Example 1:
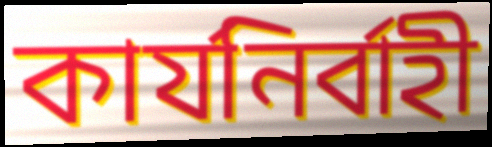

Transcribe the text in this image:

কার্যনির্বাহী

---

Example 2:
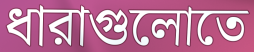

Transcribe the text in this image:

ধারাগুলোতে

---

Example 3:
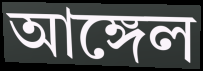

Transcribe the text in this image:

আঙ্গেল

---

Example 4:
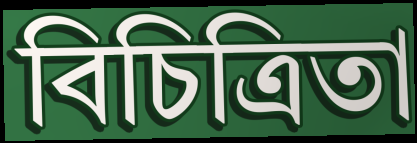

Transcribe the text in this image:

বিচিত্রিতা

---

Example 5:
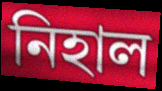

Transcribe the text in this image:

নিহাল